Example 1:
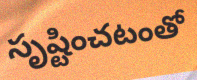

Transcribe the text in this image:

సృష్టించటంతో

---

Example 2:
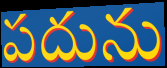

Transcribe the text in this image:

పదును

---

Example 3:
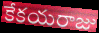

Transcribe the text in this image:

కేకయరాజు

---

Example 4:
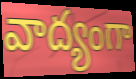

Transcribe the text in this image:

వాద్యంగా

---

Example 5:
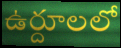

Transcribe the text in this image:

ఉర్దూలలో